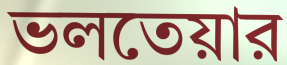
ভলতেয়ার